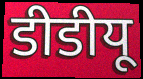
डीडीयू